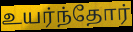
உயர்ந்தோர்